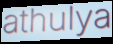
athulya